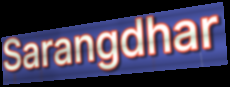
Sarangdhar